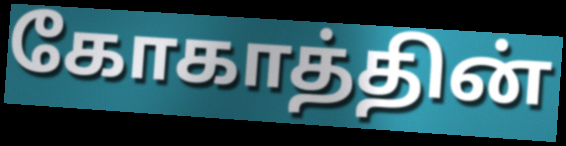
கோகாத்தின்